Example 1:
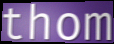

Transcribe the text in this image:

thom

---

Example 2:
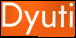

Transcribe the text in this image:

Dyuti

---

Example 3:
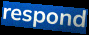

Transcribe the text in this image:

respond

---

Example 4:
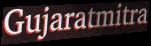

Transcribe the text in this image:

Gujaratmitra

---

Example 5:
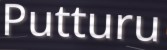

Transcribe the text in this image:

Putturu